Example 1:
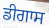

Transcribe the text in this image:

ਡੀਗਾਸ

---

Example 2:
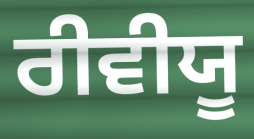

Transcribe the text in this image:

ਰੀਵੀਯੂ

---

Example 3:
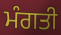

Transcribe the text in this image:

ਮੰਗਤੀ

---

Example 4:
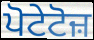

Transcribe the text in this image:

ਪੋਟੇਟੋਜ਼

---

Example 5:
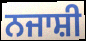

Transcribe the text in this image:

ਨਜਾਸ਼ੀ